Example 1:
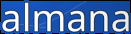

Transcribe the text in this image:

almana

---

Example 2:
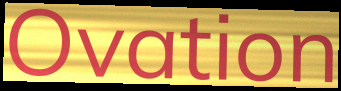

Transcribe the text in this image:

Ovation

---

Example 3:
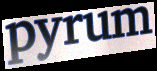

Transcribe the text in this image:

pyrum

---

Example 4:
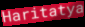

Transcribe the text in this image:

Haritatya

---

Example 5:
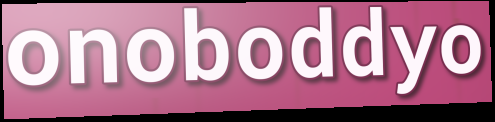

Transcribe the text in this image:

onoboddyo